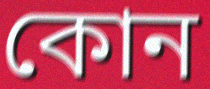
কোন